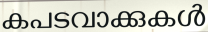
കപടവാക്കുകൾ